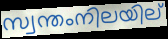
സ്വന്തംനിലയില്